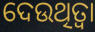
ଦେଉଥିତ୍ବା